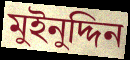
মুইনুদ্দিন